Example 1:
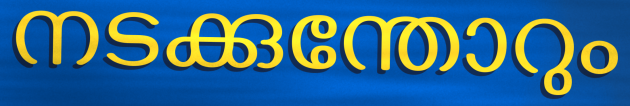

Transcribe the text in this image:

നടക്കുന്തോറും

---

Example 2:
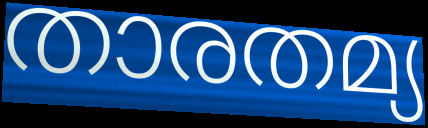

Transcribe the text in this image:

താരതമ്യ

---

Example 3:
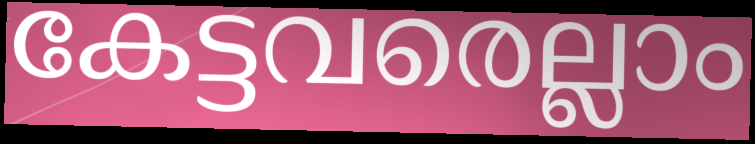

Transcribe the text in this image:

കേട്ടവരെല്ലാം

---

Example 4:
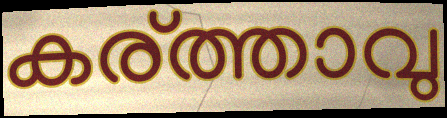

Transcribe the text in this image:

കര്ത്താവു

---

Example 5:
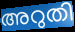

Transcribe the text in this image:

അറുതി